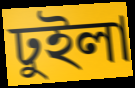
ঢুইলা